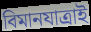
বিমানযাত্রাই